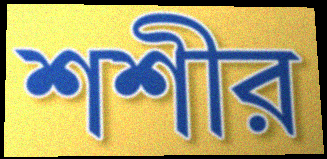
শশীর